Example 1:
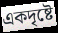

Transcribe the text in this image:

একদৃষ্টে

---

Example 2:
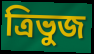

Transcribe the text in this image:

ত্রিভুজ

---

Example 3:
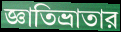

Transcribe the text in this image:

জ্ঞাতিভ্রাতার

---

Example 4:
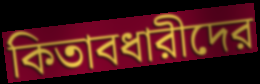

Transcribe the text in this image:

কিতাবধারীদের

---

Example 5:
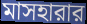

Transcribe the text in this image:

মাসহারার